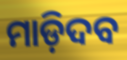
ମାଡ଼ିଦବ